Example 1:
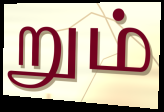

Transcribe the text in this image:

றும்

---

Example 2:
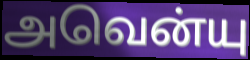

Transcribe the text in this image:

அவென்யு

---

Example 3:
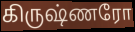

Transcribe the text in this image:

கிருஷ்ணரோ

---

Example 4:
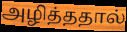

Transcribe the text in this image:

அழித்ததால்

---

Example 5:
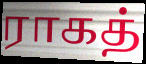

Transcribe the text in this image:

ராகத்